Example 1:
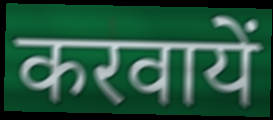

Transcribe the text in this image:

करवायें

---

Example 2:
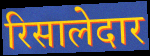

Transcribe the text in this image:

रिसालेदार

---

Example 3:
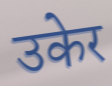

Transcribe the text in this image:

उकेर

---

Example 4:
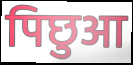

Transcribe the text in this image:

पिछुआ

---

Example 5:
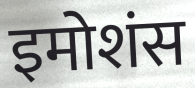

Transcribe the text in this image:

इमोशंस